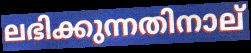
ലഭിക്കുന്നതിനാല്